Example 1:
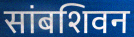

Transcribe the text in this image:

सांबशिवन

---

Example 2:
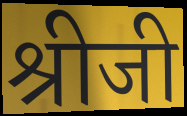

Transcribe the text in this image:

श्रीजी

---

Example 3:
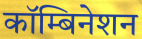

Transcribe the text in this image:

कॉम्बिनेशन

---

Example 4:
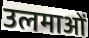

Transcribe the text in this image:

उलमाओं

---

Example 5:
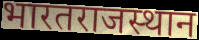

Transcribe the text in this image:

भारतराजस्थान